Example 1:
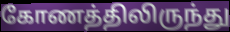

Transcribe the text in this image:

கோணத்திலிருந்து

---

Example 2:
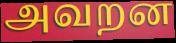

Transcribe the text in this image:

அவறன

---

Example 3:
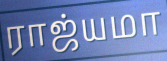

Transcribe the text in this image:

ராஜ்யமா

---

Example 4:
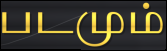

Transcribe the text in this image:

படமும்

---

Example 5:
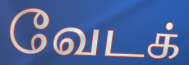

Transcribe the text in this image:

வேடக்